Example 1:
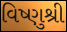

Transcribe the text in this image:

વિષ્ણુશ્રી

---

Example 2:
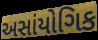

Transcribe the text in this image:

અસાંયોગિક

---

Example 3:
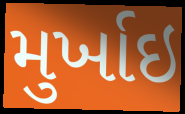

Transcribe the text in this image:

મુર્ખાઇ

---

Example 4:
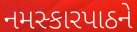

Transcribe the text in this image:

નમસ્કારપાઠને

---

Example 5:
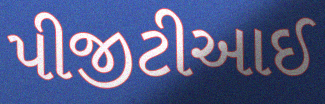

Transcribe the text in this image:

પીજીટીઆઈ